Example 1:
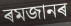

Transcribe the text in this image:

ৰমজানৰ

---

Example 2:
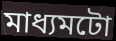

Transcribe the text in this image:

মাধ্যমটো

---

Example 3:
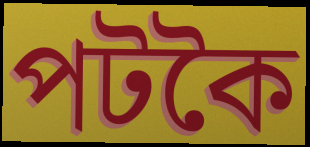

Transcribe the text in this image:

পটকৈ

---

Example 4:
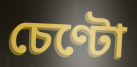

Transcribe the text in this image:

চেণ্টো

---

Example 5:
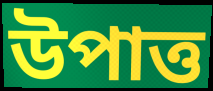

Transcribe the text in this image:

উপাত্ত